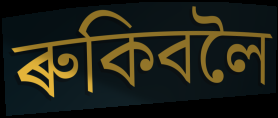
ৰুকিবলৈ